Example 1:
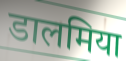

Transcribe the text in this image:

डालमिया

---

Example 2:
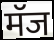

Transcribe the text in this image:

मॅज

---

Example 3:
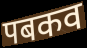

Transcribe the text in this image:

पबकव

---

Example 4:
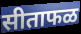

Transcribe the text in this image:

सीताफळ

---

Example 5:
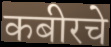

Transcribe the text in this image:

कबीरचे